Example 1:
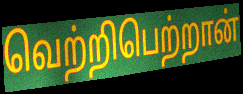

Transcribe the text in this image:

வெற்றிபெற்றான்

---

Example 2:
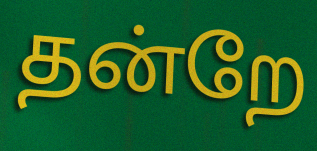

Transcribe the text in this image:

தன்றே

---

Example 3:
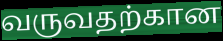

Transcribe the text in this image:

வருவதற்கான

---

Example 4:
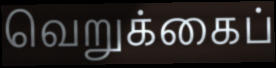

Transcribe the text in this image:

வெறுக்கைப்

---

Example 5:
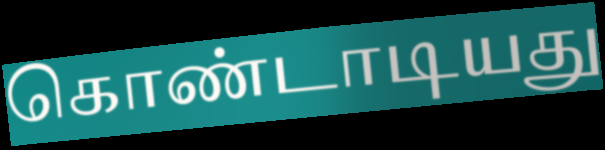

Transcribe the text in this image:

கொண்டாடியது